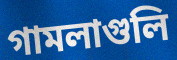
গামলাগুলি